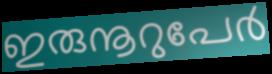
ഇരുനൂറുപേർ